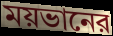
ময়ভানের